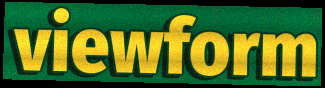
viewform